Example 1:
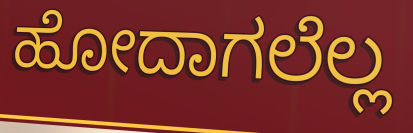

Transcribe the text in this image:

ಹೋದಾಗಲೆಲ್ಲ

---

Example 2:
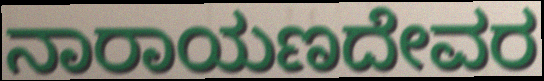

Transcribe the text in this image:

ನಾರಾಯಣದೇವರ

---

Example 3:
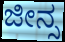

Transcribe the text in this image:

ಜೀನ್ಸ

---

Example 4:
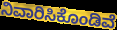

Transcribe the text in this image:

ನಿವಾರಿಸಿಕೊಂಡಿವೆ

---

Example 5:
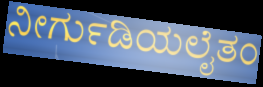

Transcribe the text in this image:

ನೀರ್ಗುಡಿಯಲೈತಂ